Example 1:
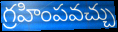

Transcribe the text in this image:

గ్రహింపవచ్చు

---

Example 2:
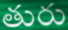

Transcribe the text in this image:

తురు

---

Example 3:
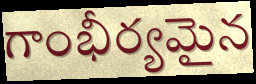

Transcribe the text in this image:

గాంభీర్యమైన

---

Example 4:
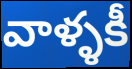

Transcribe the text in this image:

వాళ్ళకీ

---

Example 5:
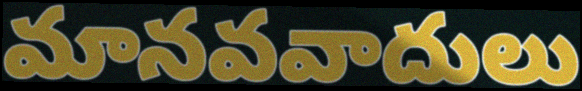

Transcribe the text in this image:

మానవవాదులు